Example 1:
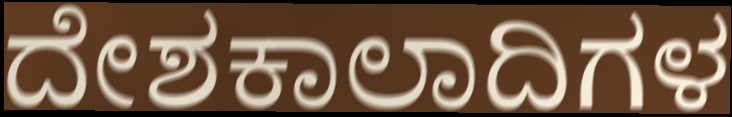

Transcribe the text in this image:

ದೇಶಕಾಲಾದಿಗಳ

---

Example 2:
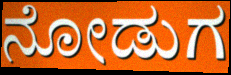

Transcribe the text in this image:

ನೋಡುಗ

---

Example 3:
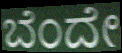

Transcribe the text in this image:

ಬೆಂದೇ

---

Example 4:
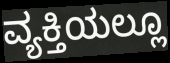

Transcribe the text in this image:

ವ್ಯಕ್ತಿಯಲ್ಲೂ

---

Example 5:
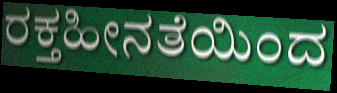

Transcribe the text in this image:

ರಕ್ತಹೀನತೆಯಿಂದ